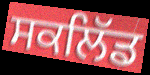
ਸਕਲਿੱਡ